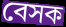
বেসক